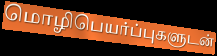
மொழிபெயர்ப்புகளுடன்